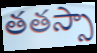
తతస్సా